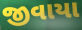
જીવાયા